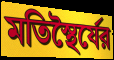
মতিস্থৈর্যের